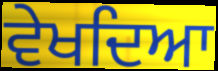
ਵੇਖਦਿਆ